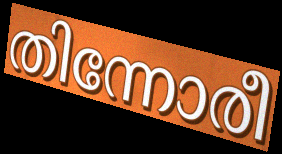
തിന്നോരീ